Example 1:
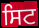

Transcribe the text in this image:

ਸਿਟ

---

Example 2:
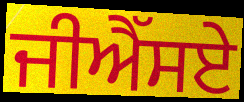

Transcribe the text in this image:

ਜੀਐੱਸਏ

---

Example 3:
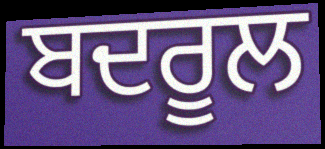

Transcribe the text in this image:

ਬਦਰੂਲ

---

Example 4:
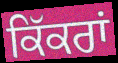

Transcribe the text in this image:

ਕਿੱਕਰਾਂ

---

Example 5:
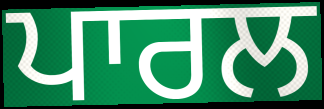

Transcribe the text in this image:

ਪਾਰਲ